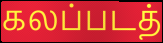
கலப்படத்